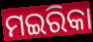
ମଇରିକା